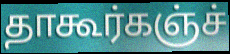
தாகூர்கஞ்ச்